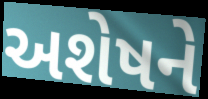
અશેષને